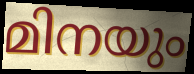
മിനയും